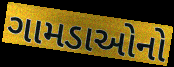
ગામડાઓનો